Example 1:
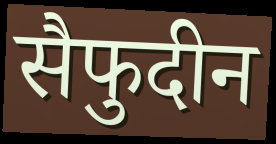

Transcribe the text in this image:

सैफुदीन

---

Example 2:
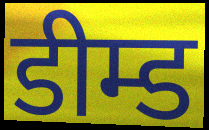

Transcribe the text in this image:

डीम्ड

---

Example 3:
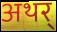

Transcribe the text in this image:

अथर्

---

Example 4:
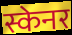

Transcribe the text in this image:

स्‍केनर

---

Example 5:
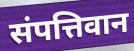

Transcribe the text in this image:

संपत्तिवान